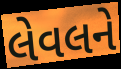
લેવલને